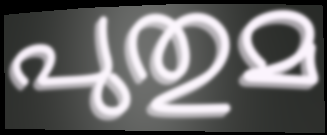
പുതുമ